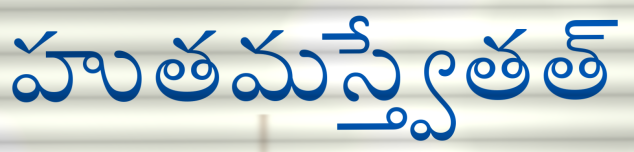
హుతమస్త్వేతత్